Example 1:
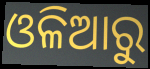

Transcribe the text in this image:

ଓଳିଆରୁ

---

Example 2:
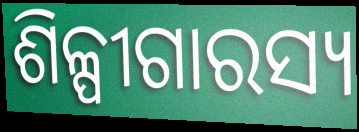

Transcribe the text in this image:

ଶିଳ୍ପୀଗାରସ୍ୟ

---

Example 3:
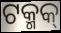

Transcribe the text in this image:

ଟକ୍ମକ୍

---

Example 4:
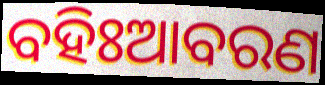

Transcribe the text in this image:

ବହିଃଆବରଣ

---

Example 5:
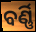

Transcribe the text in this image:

ବର୍ଣ୍ଣି